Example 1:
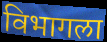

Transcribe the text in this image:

विभागला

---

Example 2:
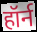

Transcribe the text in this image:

हॉर्न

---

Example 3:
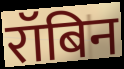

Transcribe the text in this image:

रॉबिन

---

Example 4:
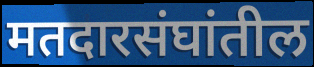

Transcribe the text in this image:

मतदारसंघांतील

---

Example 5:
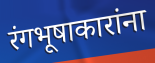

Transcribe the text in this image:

रंगभूषाकारांना